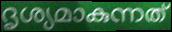
ദൃശ്യമാകുന്നത്